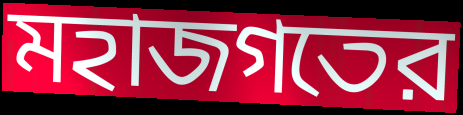
মহাজগতের